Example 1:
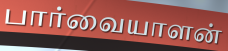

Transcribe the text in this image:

பார்வையாளன்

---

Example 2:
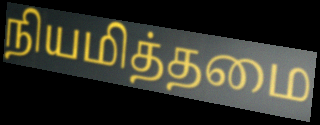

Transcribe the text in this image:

நியமித்தமை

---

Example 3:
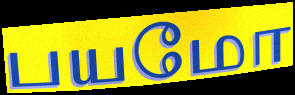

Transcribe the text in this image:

பயமோ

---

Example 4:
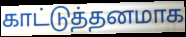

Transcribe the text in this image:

காட்டுத்தனமாக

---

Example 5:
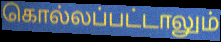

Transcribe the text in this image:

கொல்லப்பட்டாலும்